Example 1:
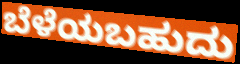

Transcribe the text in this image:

ಬೆಳೆಯಬಹುದು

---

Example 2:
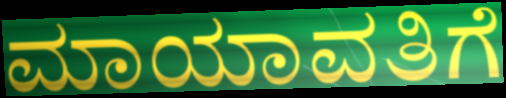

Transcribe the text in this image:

ಮಾಯಾವತಿಗೆ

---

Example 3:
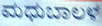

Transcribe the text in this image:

ಮಧುಬಾಲಳ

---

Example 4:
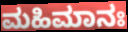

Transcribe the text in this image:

ಮಹಿಮಾನಃ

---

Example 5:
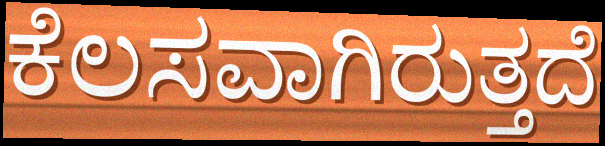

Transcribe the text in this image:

ಕೆಲಸವಾಗಿರುತ್ತದೆ